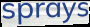
sprays